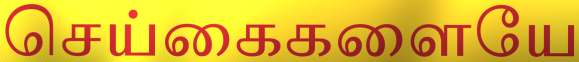
செய்கைகளையே